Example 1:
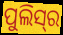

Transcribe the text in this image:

ପୁଲିସ୍‌ର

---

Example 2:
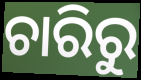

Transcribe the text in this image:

ଚାରିରୁ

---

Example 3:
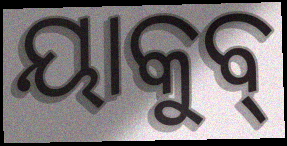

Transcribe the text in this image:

ୟାକୁବ୍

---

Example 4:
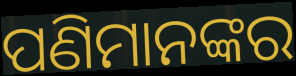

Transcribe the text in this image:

ପଣିମାନଙ୍କର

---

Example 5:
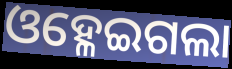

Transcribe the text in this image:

ଓହ୍ଳେଇଗଲା